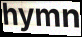
hymn